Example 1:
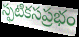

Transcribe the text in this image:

స్ఫటికసప్రభం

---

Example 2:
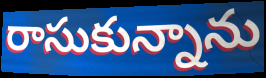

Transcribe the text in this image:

రాసుకున్నాను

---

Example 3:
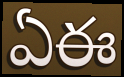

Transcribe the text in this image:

ఏఈ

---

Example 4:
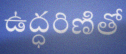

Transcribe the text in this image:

ఉద్ధరిణితో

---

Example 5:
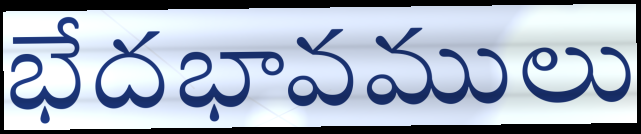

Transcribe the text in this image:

భేదభావములు